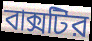
বাক্সটির